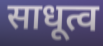
साधूत्व